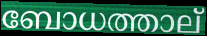
ബോധത്താല്